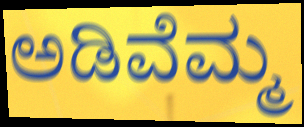
ಅಡಿವೆಮ್ಮ